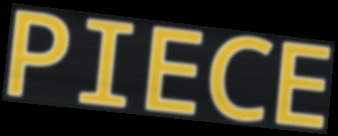
PIECE